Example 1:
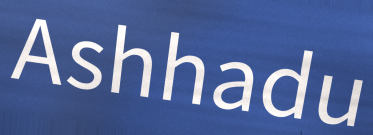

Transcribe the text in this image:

Ashhadu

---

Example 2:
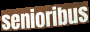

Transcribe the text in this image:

senioribus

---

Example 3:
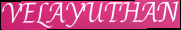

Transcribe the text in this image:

VELAYUTHAN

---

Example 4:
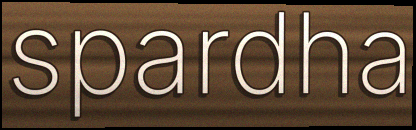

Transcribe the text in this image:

spardha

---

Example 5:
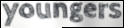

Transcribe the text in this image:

youngers